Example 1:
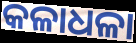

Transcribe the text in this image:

କଳାଧଳା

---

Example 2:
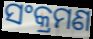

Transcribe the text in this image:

ସଂକ୍ରମଣ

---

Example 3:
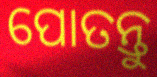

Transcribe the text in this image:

ପୋତନ୍ତୁ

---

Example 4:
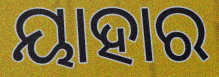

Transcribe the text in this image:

ୟାହାର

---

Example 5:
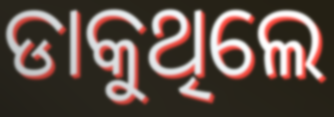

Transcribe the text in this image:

ଡାକୁଥିଲେ